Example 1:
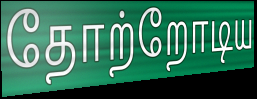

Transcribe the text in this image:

தோற்றோடிய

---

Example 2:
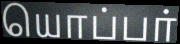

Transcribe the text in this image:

யொப்பர்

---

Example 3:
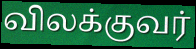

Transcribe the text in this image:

விலக்குவர்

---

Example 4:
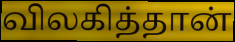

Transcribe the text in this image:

விலகித்தான்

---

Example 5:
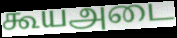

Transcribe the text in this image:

கூயஅடை